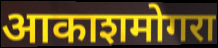
आकाशमोगरा